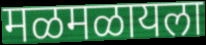
मळमळायला